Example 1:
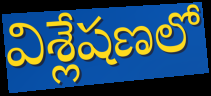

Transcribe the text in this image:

విశ్లేషణలో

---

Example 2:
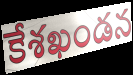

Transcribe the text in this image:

కేశఖండన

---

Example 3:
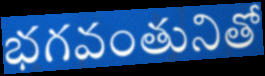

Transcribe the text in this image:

భగవంతునితో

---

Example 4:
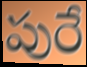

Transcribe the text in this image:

పురే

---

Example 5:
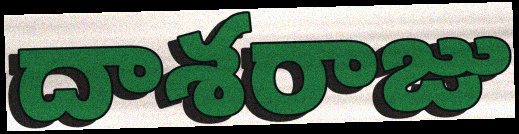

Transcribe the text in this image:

దాశరాజు